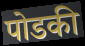
पोडकी